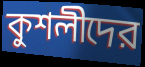
কুশলীদের